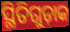
ସ୍ଥିତିଗୁଡ଼ାକ